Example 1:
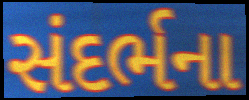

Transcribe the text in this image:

સંદર્ભના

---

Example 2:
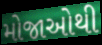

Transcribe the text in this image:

મોજાઓથી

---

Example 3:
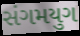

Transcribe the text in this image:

સંગમયુગ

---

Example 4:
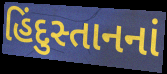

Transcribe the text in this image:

હિંદુસ્તાનનાં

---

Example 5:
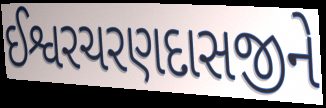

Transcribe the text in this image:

ઈશ્વરચરણદાસજીને